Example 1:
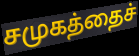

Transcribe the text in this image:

சமுகத்தைச்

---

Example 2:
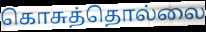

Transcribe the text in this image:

கொசுத்தொல்லை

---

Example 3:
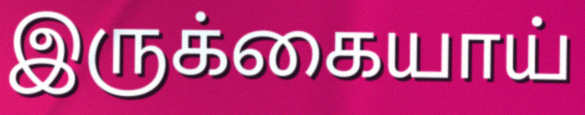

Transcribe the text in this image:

இருக்கையாய்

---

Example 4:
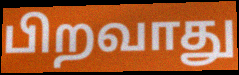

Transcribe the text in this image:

பிறவாது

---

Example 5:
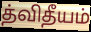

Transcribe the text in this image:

த்விதீயம்